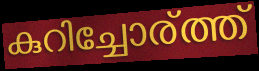
കുറിച്ചോര്ത്ത്